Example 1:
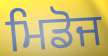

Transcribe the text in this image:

ਮਿਡੋਜ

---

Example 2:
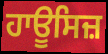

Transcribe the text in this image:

ਹਾਊਸਿਜ਼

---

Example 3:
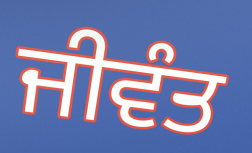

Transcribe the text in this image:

ਜੀਵੰਤ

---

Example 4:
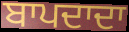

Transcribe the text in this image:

ਬਾਪਦਾਦਾ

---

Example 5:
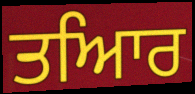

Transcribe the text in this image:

ਤਆਿਰ